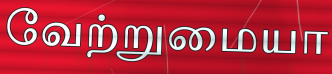
வேற்றுமையா